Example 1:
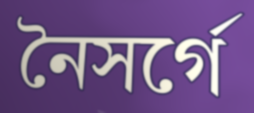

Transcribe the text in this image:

নৈসর্গে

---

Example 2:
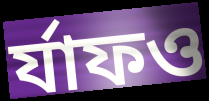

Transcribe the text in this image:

র্যাফও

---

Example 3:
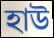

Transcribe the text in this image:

হাউ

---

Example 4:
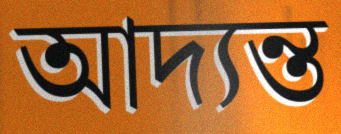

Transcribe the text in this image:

আদ্যন্ত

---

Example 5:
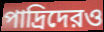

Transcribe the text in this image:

পাদ্রিদেরও